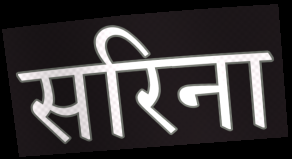
सरिना